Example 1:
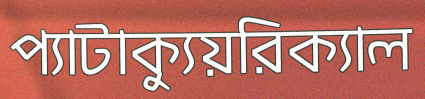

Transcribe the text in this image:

প্যাটাক্যুয়রিক্যাল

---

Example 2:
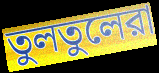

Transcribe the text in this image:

তুলতুলেরা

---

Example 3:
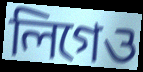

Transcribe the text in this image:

লিগেও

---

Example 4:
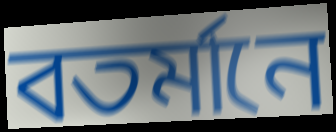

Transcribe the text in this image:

বতর্মানে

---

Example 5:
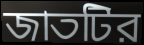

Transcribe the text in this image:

জাতটির